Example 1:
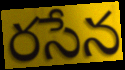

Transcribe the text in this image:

రసేన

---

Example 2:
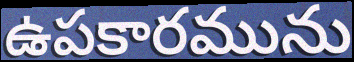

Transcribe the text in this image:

ఉపకారమును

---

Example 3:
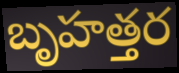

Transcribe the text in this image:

బృహత్తర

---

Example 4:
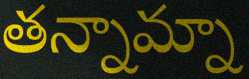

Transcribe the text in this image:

తన్నామ్నా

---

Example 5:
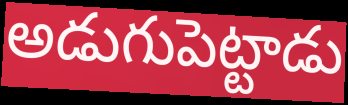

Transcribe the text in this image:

అడుగుపెట్టాడు